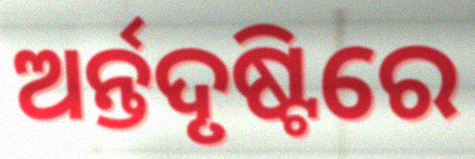
ଅର୍ନ୍ତଦୃଷ୍ଟିରେ